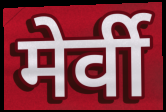
मेर्वी